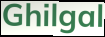
Ghilgal